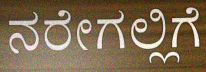
ನರೇಗಲ್ಲಿಗೆ